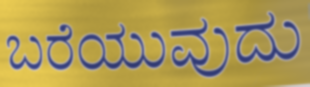
ಬರೆಯುವುದು